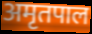
अमृतपाल